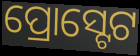
ପ୍ରୋସ୍ଟେଟ